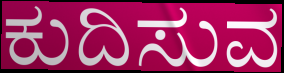
ಕುದಿಸುವ